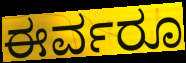
ಈರ್ವರೂ